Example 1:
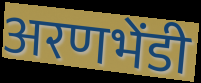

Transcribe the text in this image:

अरणभेंडी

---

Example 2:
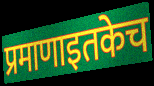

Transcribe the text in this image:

प्रमाणाइतकेच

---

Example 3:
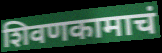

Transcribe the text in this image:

शिवणकामाचं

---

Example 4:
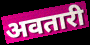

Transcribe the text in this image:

अवतारी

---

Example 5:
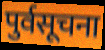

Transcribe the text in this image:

पुर्वसूचना